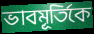
ভাবমূর্তিকে